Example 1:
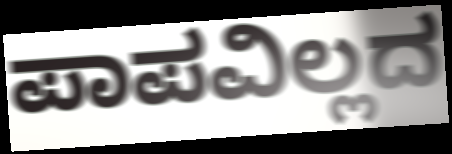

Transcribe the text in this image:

ಪಾಪವಿಲ್ಲದ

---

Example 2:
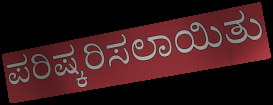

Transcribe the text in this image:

ಪರಿಷ್ಕರಿಸಲಾಯಿತು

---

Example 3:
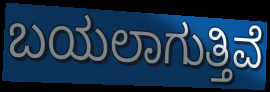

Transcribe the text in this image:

ಬಯಲಾಗುತ್ತಿವೆ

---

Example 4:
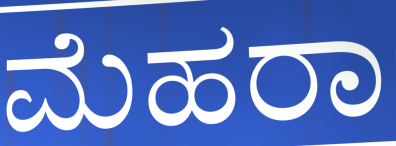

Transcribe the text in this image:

ಮೆಹರಾ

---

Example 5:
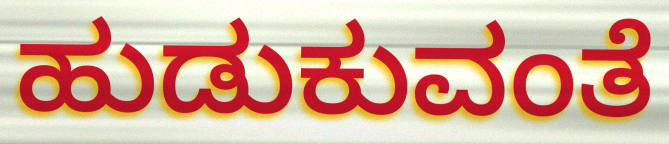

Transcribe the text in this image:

ಹುಡುಕುವಂತೆ